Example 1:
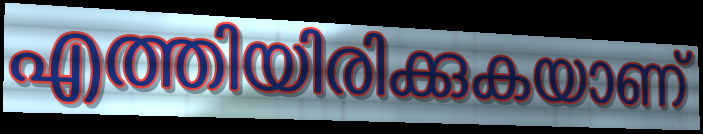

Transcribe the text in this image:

എത്തിയിരിക്കുകയാണ്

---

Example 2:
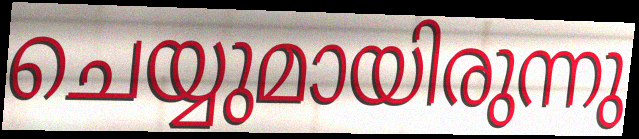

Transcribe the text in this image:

ചെയ്യുമായിരുന്നു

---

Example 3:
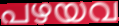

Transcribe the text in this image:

പഴയവ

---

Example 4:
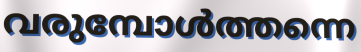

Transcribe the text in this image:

വരുമ്പോൾത്തന്നെ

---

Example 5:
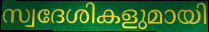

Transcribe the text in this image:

സ്വദേശികളുമായി